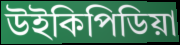
উইকিপিডিয়া